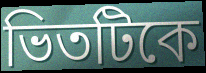
ভিতটিকে